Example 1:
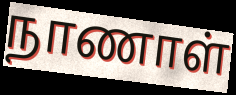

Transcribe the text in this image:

நாணாள்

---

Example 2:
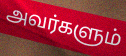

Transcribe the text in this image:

அவர்களும்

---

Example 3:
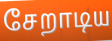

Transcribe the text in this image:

சேறாடிய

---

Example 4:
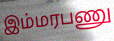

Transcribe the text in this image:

இம்மரபணு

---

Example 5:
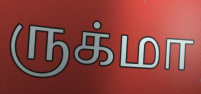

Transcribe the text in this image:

ருக்மா